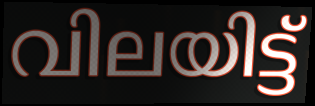
വിലയിട്ട്